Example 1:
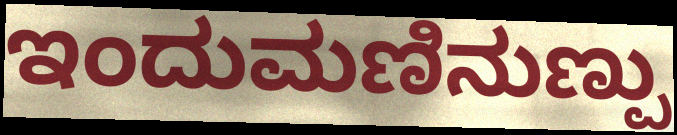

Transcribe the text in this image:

ಇಂದುಮಣಿನುಣ್ಪು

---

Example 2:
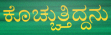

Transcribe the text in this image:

ಕೊಚ್ಚುತ್ತಿದ್ದನು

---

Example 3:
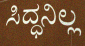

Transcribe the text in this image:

ಸಿದ್ಧನಿಲ್ಲ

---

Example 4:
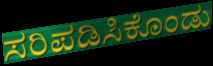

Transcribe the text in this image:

ಸರಿಪಡಿಸಿಕೊಂಡು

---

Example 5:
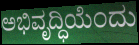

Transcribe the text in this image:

ಅಭಿವೃದ್ಧಿಯೆಂದು